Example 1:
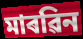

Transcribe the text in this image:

মাৰৱিন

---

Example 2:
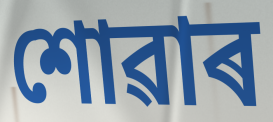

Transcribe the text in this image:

শোৱাৰ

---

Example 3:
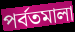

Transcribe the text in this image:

পৰ্বতমালা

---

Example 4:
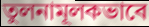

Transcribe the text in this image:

তুলনামূলকভাবে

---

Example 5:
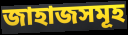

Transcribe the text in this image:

জাহাজসমূহ